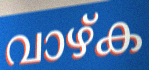
വാഴ്ക